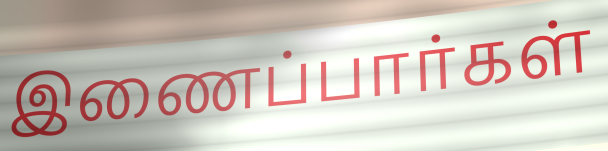
இணைப்பார்கள்